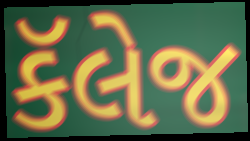
કૅલેજ